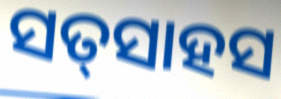
ସତ୍‌ସାହସ